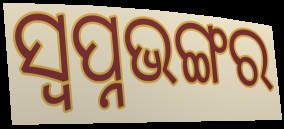
ସ୍ୱପ୍ନଭଙ୍ଗର